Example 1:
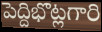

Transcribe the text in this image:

పెద్దిభొట్లగారి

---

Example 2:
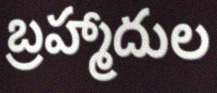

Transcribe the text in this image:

బ్రహ్మాదుల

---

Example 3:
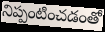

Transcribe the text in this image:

నిప్పంటించడంతో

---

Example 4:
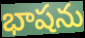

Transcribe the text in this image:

భాషను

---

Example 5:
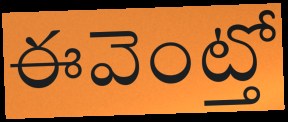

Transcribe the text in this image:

ఈవెంట్తో